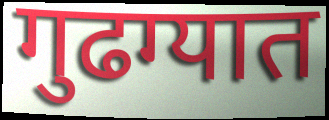
गुढग्यात